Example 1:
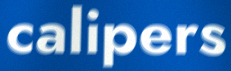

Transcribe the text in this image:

calipers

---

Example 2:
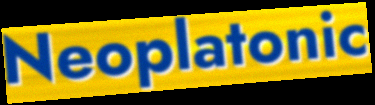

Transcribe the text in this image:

Neoplatonic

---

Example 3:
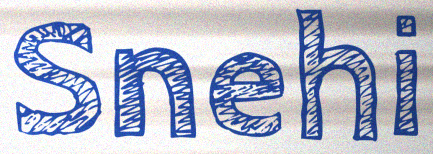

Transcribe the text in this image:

Snehi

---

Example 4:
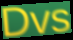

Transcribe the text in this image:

Dvs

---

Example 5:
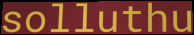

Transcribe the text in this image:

solluthu